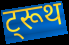
ट्रूथ